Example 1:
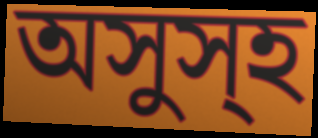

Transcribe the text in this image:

অসুস্হ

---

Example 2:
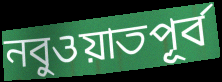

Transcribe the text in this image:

নবুওয়াতপূর্ব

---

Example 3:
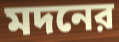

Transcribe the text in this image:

মদনের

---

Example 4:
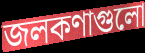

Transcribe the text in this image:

জলকণাগুলো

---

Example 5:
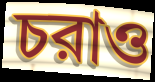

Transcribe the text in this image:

চরাও